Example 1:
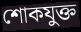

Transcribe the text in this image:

শোকযুক্ত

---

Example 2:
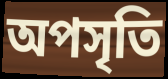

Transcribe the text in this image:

অপসৃতি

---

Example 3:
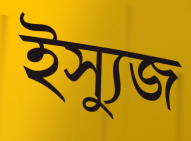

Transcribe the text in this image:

ইস্যুজ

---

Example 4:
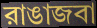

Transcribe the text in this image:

রাঙাজবা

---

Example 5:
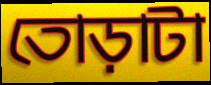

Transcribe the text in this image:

তোড়াটা